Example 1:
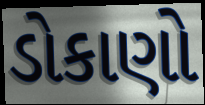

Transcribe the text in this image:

ડોકાણો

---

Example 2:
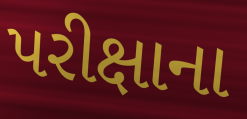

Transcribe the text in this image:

પરીક્ષાના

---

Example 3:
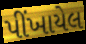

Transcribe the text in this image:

પીંખાયેલ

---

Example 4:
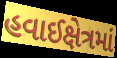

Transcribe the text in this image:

હવાઈક્ષેત્રમાં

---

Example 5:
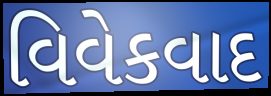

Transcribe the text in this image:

વિવેકવાદ